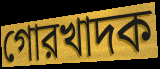
গোরখাদক